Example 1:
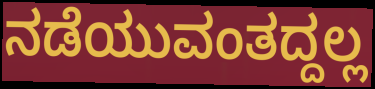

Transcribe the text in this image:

ನಡೆಯುವಂತದ್ದಲ್ಲ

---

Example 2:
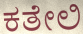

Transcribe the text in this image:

ಕತೇಲಿ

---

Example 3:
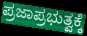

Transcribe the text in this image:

ಪ್ರಜಾಪ್ರಭುತ್ವಕ್ಕೆ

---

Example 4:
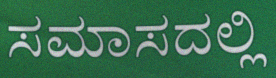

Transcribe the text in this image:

ಸಮಾಸದಲ್ಲಿ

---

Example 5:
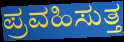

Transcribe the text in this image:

ಪ್ರವಹಿಸುತ್ತ